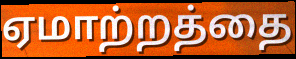
ஏமாற்றத்தை